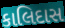
કાલિદાસ